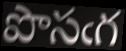
పొసఁగ